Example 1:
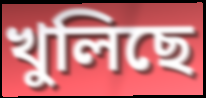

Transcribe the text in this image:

খুলিছে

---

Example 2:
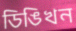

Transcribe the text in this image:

ডিঙিখন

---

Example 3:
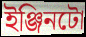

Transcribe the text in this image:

ইঞ্জিনটো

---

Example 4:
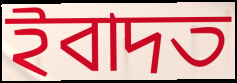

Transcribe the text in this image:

ইবাদত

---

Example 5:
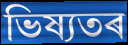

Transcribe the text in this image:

ভিষ্যতৰ